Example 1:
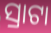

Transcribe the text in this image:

ସ୍ରାଟା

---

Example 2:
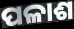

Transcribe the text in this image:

ପଳାଶ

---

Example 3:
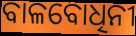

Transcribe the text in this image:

ବାଳବୋଧିନୀ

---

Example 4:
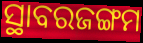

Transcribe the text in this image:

ସ୍ଥାବରଜଙ୍ଗମ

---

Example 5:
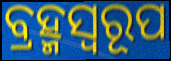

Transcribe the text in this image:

ବ୍ରହ୍ମସ୍ୱରୂପ